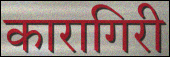
कारागिरी